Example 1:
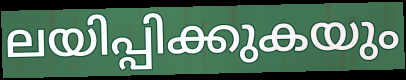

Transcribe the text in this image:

ലയിപ്പിക്കുകയും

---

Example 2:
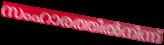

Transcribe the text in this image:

സംഹാരത്തിൽനിന്ന്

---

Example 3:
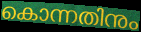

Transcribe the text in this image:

കൊന്നതിനും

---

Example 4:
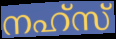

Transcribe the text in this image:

നഹ്സ്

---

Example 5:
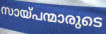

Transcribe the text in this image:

സായ്പന്മാരുടെ